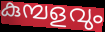
കുമ്പളവും